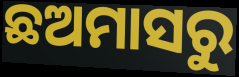
ଛଅମାସରୁ